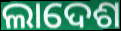
ଲାଦେଶ